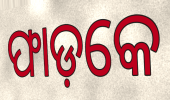
ଫାଡ଼କେ